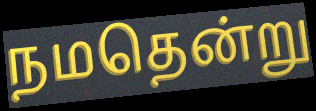
நமதென்று